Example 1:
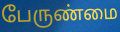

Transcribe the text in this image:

பேருண்மை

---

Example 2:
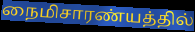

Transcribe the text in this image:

நைமிசாரண்யத்தில்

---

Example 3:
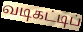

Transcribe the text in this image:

வடிகட்டிப்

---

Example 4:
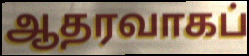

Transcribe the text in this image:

ஆதரவாகப்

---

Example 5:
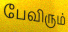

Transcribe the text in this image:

பேவிரும்